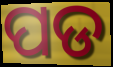
ପଡ